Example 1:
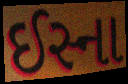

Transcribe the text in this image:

ઈસ્ના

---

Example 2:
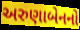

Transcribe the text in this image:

અરુણાબેનનો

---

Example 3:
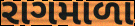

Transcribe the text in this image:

રાગમાળા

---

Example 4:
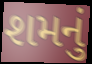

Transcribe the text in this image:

શમનું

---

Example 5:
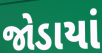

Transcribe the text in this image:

જોડાયાં